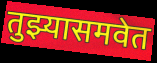
तुझ्यासमवेत